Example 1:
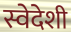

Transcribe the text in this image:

स्वेदेशी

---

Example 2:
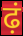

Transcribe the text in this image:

ढ़ं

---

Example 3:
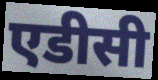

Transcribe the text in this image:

एडीसी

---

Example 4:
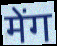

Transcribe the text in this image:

मेंग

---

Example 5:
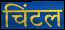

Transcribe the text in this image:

चिंटल